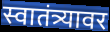
स्वातंत्र्यावर